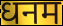
धनम